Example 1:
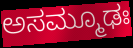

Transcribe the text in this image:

ಅಸಮ್ಮೂಢಃ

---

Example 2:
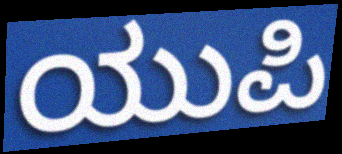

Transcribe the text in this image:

ಯುಪಿ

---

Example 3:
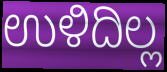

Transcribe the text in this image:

ಉಳಿದಿಲ್ಲ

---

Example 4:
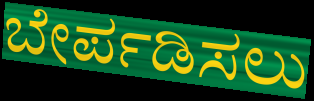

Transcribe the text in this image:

ಬೇರ್ಪಡಿಸಲು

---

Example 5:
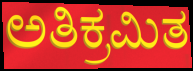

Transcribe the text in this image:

ಅತಿಕ್ರಮಿತ